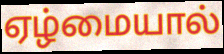
ஏழ்மையால்